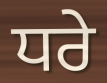
ਧਰੇ